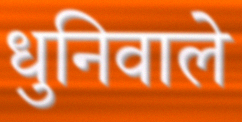
धुनिवाले